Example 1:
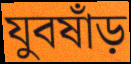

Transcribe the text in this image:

যুবষাঁড়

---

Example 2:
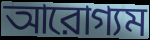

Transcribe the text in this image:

আরোগ্যম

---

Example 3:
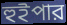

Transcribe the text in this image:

হুইপার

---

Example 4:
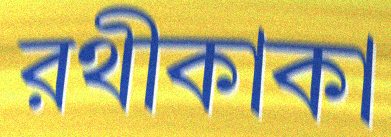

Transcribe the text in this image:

রথীকাকা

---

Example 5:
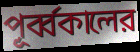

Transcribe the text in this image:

পূর্ব্বকালের